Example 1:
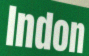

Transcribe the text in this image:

Indon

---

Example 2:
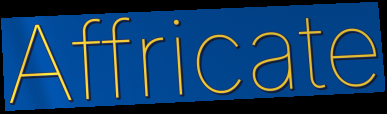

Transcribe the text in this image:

Affricate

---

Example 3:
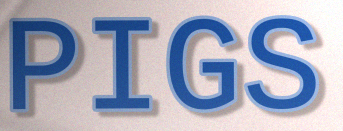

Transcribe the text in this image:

PIGS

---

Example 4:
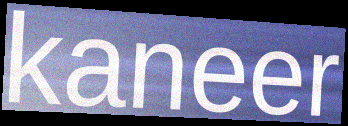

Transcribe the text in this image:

kaneer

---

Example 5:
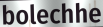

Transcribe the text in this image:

bolechhe